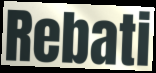
Rebati